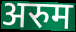
अरुम